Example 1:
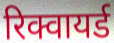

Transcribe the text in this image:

रिक्वायर्ड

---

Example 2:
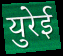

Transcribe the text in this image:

युरेई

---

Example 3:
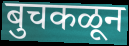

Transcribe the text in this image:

बुचकळून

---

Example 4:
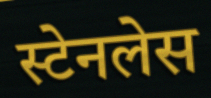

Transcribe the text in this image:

स्टेनलेस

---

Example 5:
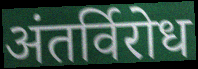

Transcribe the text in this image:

अंतर्विरोध